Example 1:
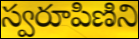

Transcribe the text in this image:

స్వరూపిణిని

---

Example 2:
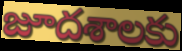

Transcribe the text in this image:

జూదశాలకు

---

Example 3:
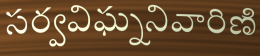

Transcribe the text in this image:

సర్వవిఘ్ననివారిణి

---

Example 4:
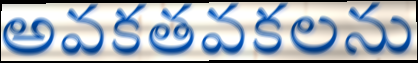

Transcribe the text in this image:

అవకతవకలను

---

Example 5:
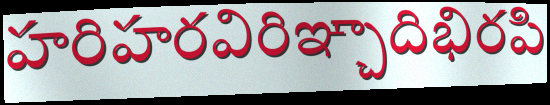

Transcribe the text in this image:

హరిహరవిరిఞ్చాదిభిరపి